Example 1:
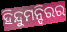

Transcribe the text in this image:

ହିନ୍ଦୁମନ୍ଦିରର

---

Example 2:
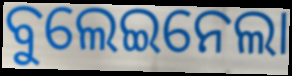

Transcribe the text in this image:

ବୁଲେଇନେଲା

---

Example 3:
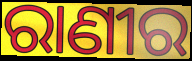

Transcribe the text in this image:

ରାଣୀର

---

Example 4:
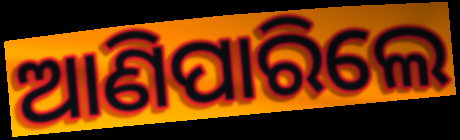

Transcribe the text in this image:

ଆଣିପାରିଲେ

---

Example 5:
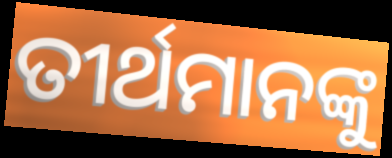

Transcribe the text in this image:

ତୀର୍ଥମାନଙ୍କୁ